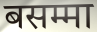
बसम्मा